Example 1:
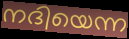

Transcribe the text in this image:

നദിയെന്ന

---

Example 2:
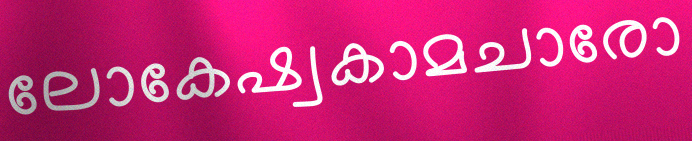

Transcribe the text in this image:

ലോകേഷ്വകാമചാരോ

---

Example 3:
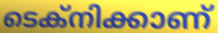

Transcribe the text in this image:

ടെക്നിക്കാണ്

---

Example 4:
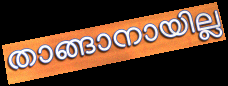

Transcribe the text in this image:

താങ്ങാനായില്ല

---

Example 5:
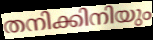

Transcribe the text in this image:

തനിക്കിനിയും